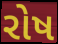
રોષ